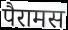
पैरामस